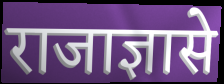
राजाज्ञासे